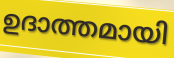
ഉദാത്തമായി